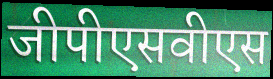
जीपीएसवीएस